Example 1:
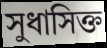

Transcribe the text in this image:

সুধাসিক্ত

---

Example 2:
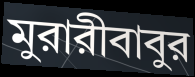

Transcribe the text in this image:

মুরারীবাবুর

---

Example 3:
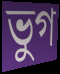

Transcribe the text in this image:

ভুগ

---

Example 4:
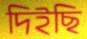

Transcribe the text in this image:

দিইছি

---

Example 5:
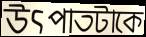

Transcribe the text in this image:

উৎপাতটাকে